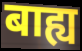
बाह्य